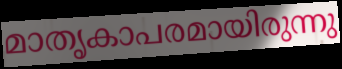
മാതൃകാപരമായിരുന്നു